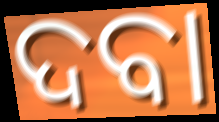
ଦବା